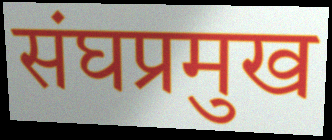
संघप्रमुख